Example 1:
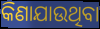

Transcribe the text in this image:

କିଣାଯାଉଥିବା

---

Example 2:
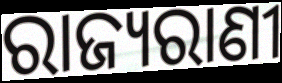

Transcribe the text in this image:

ରାଜ୍ୟରାଣୀ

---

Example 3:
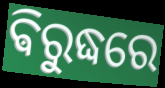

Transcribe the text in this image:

ଵିରୁଦ୍ଧରେ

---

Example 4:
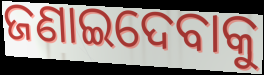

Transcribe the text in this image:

ଜଣାଇଦେବାକୁ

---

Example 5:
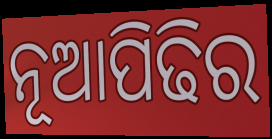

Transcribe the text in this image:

ନୂଆପିଢିର